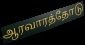
ஆரவாரத்தோடு